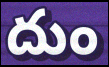
దుం